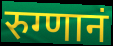
रुग्णानं